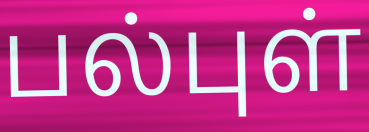
பல்புள்